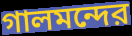
গালমন্দের